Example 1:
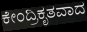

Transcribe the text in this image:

ಕೇಂದ್ರಿಕೃತವಾದ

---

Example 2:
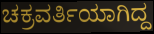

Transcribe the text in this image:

ಚಕ್ರವರ್ತಿಯಾಗಿದ್ದ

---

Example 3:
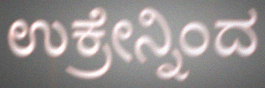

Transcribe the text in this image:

ಉಕ್ರೇನ್ನಿಂದ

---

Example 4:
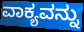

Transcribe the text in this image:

ವಾಕ್ಯವನ್ನು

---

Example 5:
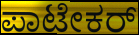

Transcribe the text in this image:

ಪಾಟೇಕರ್